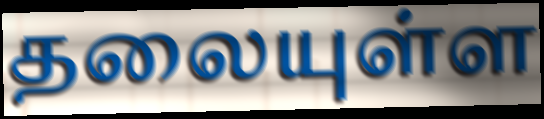
தலையுள்ள